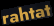
rahtat